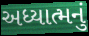
અધ્યાત્મનું